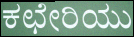
ಕಛೇರಿಯು